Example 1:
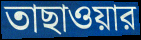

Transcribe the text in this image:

তাছাওয়ার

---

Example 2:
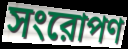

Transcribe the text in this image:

সংরোপণ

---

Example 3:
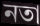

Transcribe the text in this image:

নতা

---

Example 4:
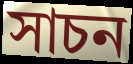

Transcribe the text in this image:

সাচন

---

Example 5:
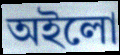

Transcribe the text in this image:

অইলো